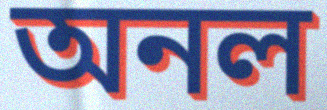
অনল